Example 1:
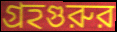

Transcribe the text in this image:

গ্রহগুরুর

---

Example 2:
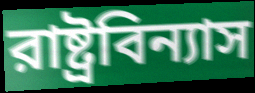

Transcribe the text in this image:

রাষ্ট্রবিন্যাস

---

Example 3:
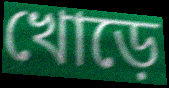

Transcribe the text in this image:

খোড়ে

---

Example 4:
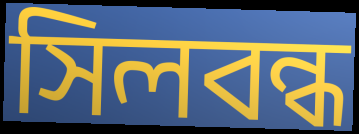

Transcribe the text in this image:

সিলবন্ধ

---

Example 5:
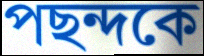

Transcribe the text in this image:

পছন্দকে